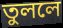
তুললে